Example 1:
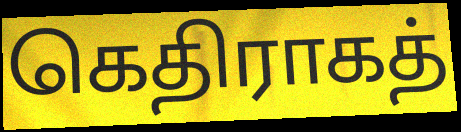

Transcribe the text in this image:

கெதிராகத்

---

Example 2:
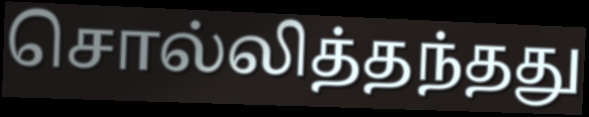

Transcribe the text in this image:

சொல்லித்தந்தது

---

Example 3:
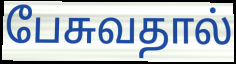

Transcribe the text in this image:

பேசுவதால்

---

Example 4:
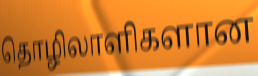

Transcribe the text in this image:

தொழிலாளிகளான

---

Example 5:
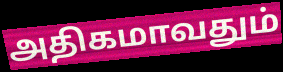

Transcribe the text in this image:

அதிகமாவதும்